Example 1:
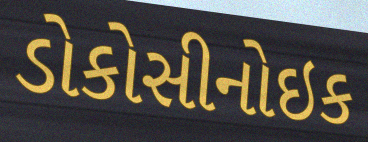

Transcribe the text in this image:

ડોકોસીનોઇક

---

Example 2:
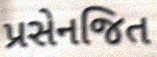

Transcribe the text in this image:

પ્રસેનજિત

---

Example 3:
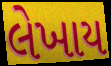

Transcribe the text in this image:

લેખાય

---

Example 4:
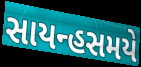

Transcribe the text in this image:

સાયન્હસમયે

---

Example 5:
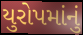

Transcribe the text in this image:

યુરોપમાંનું